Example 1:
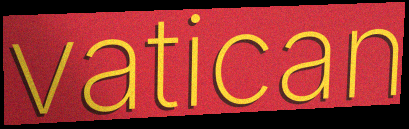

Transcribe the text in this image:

vatican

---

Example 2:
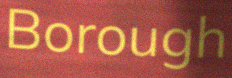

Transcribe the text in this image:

Borough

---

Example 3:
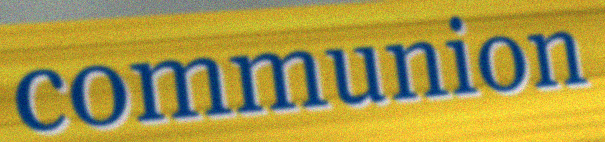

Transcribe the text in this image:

communion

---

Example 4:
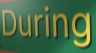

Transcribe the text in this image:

During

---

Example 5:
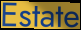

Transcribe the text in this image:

Estate